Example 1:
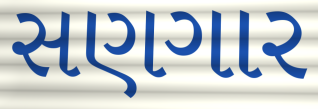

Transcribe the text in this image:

સણગાર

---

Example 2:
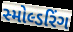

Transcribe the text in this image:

સ્મોલ્ડરિંગ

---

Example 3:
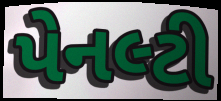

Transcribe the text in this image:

પેનલ્ટી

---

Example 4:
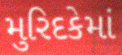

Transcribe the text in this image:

મુરિદકેમાં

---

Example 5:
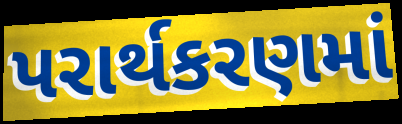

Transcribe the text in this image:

પરાર્થકરણમાં